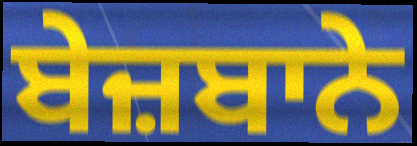
ਬੇਜ਼ਬਾਨੇ